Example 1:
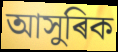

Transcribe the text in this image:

আসুৰিক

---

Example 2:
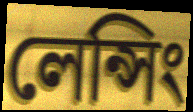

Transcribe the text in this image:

লেন্সিং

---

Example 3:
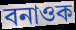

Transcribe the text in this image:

বনাওক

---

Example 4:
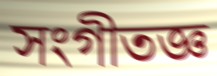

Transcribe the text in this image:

সংগীতজ্ঞ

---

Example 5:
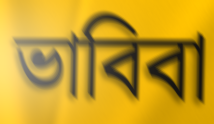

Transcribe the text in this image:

ভাবিবা